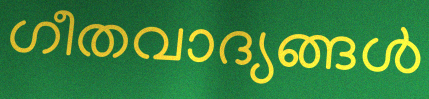
ഗീതവാദ്യങ്ങൾ